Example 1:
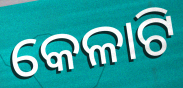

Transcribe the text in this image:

କେଳାଟି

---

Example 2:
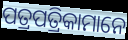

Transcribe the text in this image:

ପତ୍ରପତ୍ରିକାମାନେ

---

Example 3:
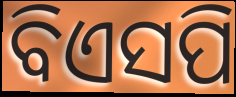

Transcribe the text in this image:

ବିଏସପି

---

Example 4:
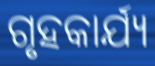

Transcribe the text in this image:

ଗୃହକାର୍ଯ୍ୟ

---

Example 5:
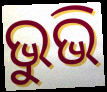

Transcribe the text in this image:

ଭୁଭି